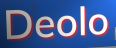
Deolo